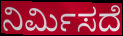
ನಿರ್ಮಿಸದೆ